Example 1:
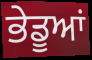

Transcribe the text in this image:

ਭੇਡੂਆਂ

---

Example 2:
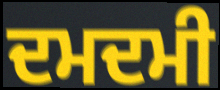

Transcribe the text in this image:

ਦਮਦਮੀ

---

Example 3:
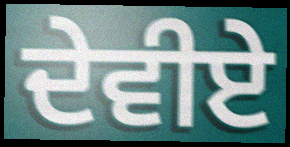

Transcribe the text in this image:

ਦੇਵੀਏ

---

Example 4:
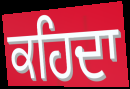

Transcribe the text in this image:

ਕਹਿਦਾ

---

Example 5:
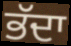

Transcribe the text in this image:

ਭੱਦਾ